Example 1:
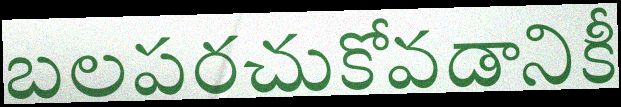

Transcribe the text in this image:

బలపరచుకోవడానికీ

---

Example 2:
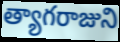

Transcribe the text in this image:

త్యాగరాజుని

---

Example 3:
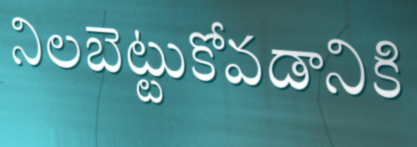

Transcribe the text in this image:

నిలబెట్టుకోవడానికి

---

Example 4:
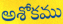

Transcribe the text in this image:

అశోకము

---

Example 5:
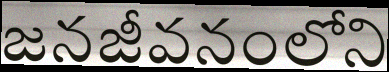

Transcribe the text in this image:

జనజీవనంలోని